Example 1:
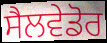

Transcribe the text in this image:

ਸੈਲਵੇਡੋਰ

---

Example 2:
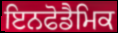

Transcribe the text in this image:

ਇਨਫੋਡੈਮਿਕ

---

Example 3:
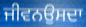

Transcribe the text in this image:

ਜੀਵਨਉਸਦਾ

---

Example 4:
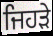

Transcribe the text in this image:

ਜਿਹਡ਼ੇ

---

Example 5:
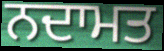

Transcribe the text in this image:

ਨਦਾਮਤ